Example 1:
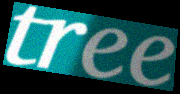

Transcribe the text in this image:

tree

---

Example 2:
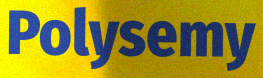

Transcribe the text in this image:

Polysemy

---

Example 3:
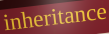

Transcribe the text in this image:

inheritance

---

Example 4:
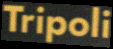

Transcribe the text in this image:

Tripoli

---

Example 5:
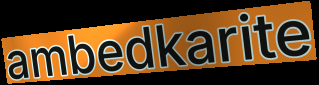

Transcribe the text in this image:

ambedkarite